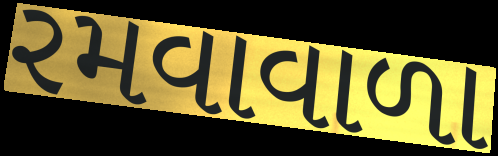
રમવાવાળા